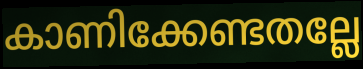
കാണിക്കേണ്ടതല്ലേ